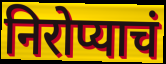
निरोप्याचं